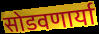
सोडवणार्या